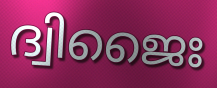
ദ്വിജൈഃ